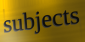
subjects